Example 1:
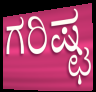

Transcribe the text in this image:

ಗರಿಷ್ಟ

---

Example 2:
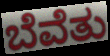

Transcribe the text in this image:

ಬೆವೆತು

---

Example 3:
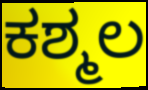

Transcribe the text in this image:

ಕಶ್ಮಲ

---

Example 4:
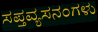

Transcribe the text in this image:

ಸಪ್ತವ್ಯಸನಂಗಳು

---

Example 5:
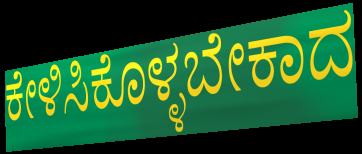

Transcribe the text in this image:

ಕೇಳಿಸಿಕೊಳ್ಳಬೇಕಾದ